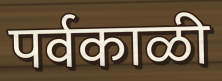
पर्वकाळी